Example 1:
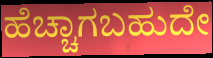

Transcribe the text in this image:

ಹೆಚ್ಚಾಗಬಹುದೇ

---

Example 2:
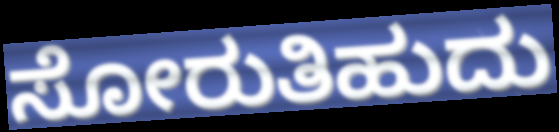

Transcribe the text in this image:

ಸೋರುತಿಹುದು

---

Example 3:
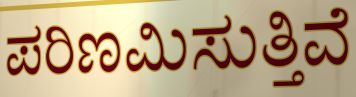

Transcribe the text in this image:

ಪರಿಣಮಿಸುತ್ತಿವೆ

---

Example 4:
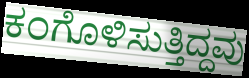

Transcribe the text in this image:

ಕಂಗೊಳಿಸುತ್ತಿದ್ದವು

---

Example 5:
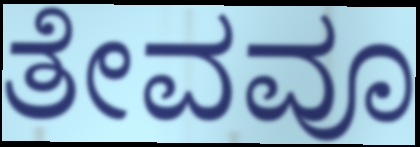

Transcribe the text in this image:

ತೇವವೂ